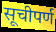
सूचीपर्ण